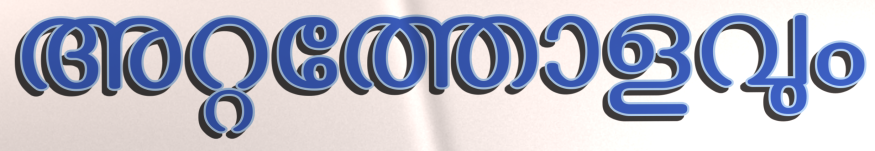
അറ്റത്തോളവും